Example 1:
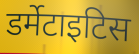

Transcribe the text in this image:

डर्मेटाइटिस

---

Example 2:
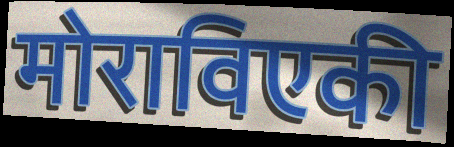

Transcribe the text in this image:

मोराविएकी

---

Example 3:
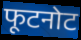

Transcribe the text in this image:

फूटनोट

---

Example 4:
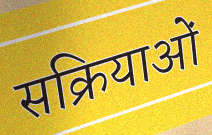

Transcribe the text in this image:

सक्रियाओं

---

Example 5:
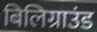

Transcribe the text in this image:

बिलिग्राउंड